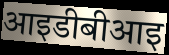
आइडीबीआइ